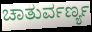
ಚಾತುರ್ವರ್ಣ್ಯ